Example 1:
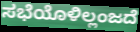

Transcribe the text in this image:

ಸಭೆಯೊಳಿಲ್ಲಂಜದೆ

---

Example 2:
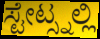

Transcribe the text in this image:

ಸ್ಟೇಟ್ಸ್ನಲ್ಲಿ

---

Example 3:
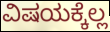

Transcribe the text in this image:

ವಿಷಯಕ್ಕೆಲ್ಲ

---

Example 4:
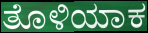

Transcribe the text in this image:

ತೊಳಿಯಾಕ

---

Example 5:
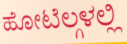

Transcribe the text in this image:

ಹೋಟೆಲ್ಗಳಲ್ಲಿ